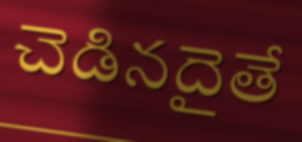
చెడినదైతే